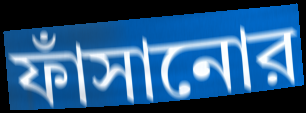
ফাঁসানোর